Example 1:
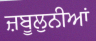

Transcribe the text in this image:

ਜ਼ਬੂਲੁਨੀਆਂ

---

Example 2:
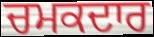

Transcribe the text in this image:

ਚਮਕਦਾਰ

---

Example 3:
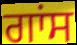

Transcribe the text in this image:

ਗਾਂਸ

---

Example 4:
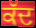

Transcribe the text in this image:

ਕੱਦ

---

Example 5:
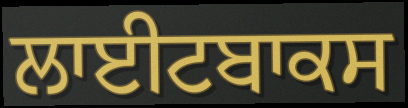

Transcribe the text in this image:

ਲਾਈਟਬਾਕਸ